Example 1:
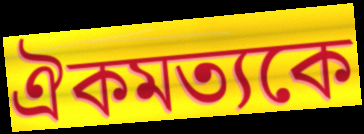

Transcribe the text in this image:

ঐকমত্যকে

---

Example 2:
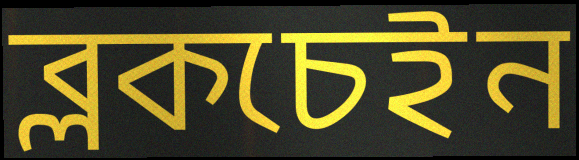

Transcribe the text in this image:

ব্লকচেইন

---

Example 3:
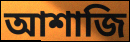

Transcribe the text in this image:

আশাজি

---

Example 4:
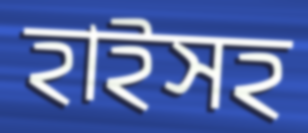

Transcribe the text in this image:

হাইসহ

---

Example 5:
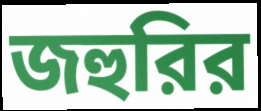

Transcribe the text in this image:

জহুরির